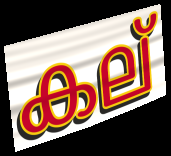
കല്